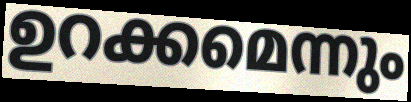
ഉറക്കമെന്നും